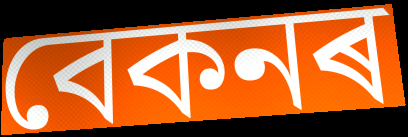
বেকনৰ